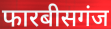
फारबीसगंज